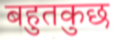
बहुतकुछ